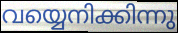
വയ്യെനിക്കിന്നു